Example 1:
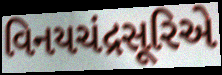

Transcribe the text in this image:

વિનયચંદ્રસૂરિએ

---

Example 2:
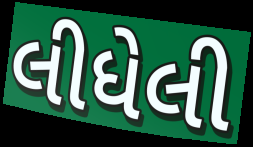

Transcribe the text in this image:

લીધેલી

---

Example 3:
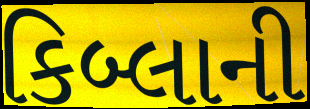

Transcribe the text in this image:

કિબ્લાની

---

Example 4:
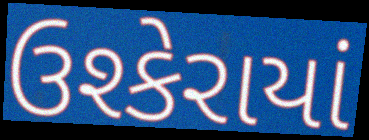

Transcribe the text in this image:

ઉશ્કેરાયાં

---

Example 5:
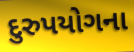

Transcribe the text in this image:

દુરુપયોગના